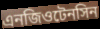
এনজিওটেনসিন